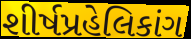
શીર્ષપ્રહેલિકાંગ